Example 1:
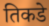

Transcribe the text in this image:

तिकडे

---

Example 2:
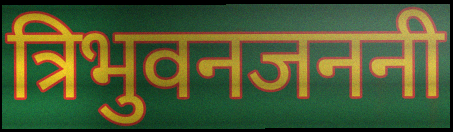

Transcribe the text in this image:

त्रिभुवनजननी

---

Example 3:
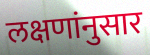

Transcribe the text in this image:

लक्षणांनुसार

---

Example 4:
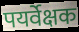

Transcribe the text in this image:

पयर्वेक्षक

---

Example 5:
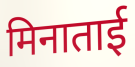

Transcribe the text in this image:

मिनाताई